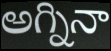
అగ్నినా